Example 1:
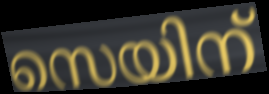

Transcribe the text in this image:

സെയിന്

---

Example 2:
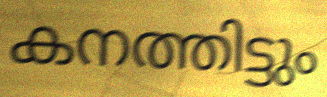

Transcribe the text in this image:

കനത്തിട്ടും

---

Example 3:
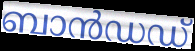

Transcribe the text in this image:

ബാൻഡഡ്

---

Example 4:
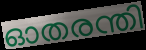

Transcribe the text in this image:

ഓതരന്തി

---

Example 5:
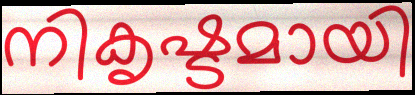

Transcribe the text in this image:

നികൃഷ്ടമായി